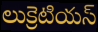
లుక్రెటియస్